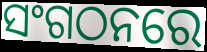
ସଂଗଠନରେ